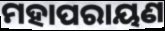
ମହାପରାୟଣ